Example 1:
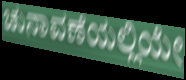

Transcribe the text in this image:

ಚುನಾವಣೆಯಲ್ಲಿಯೇ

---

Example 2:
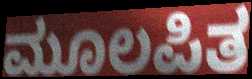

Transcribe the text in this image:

ಮೂಲಪಿತ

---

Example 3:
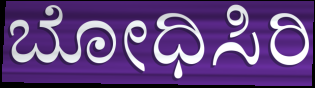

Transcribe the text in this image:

ಬೋಧಿಸಿರಿ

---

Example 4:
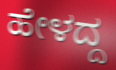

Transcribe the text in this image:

ಹೇಳದ್ದ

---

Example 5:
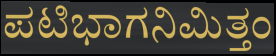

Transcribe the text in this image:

ಪಟಿಭಾಗನಿಮಿತ್ತಂ